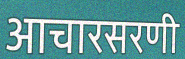
आचारसरणी